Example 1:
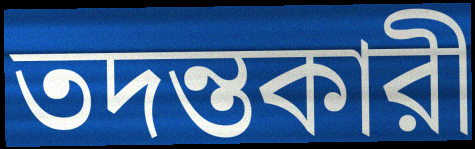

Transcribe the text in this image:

তদন্তকারী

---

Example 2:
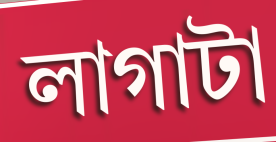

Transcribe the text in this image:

লাগাটা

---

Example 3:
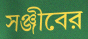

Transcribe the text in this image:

সঞ্জীবের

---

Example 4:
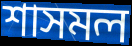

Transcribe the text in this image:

শাসমল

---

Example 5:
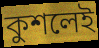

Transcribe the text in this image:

কুশলেই